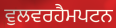
ਵੁਲਵਰਹੈਮਪਟਨ